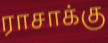
ராசாக்கு